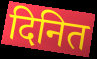
दिनित